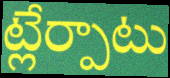
ట్లేర్పాటు